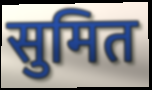
सुमित